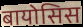
बायोसिस